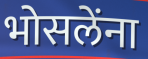
भोसलेंना